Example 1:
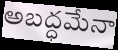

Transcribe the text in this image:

అబద్ధమేనా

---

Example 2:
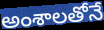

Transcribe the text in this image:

అంశాలతోనే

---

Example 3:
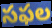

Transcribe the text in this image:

సఫల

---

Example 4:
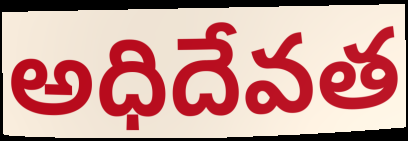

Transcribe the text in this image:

అధిదేవత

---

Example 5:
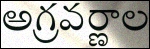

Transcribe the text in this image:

అగ్రవర్ణాల